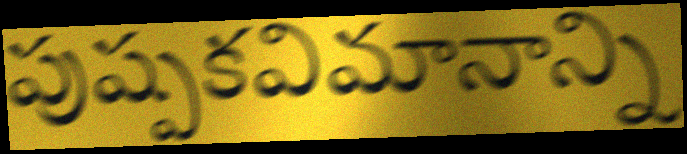
పుష్పకవిమానాన్ని